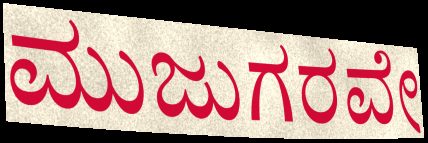
ಮುಜುಗರವೇ